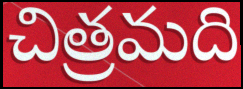
చిత్రమది